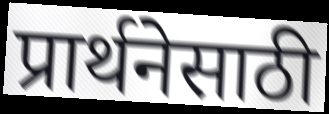
प्रार्थनेसाठी